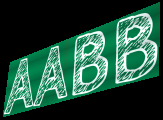
AABB